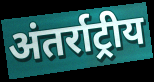
अंतर्राट्रीय